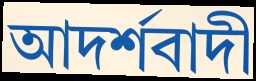
আদর্শবাদী